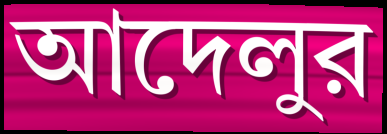
আদেলুর